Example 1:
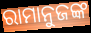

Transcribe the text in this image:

ରାମାନୁଜଙ୍କ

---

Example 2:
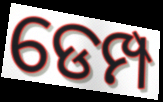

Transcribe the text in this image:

ଡେମ୍ପ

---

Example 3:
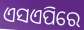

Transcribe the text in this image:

ଏସଏପିରେ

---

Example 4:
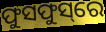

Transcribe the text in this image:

ଫୁସଫୁସ୍‌ରେ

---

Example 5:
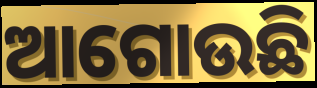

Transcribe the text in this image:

ଆଗୋଉଛି